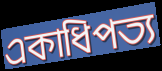
একাধিপত্য